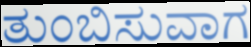
ತುಂಬಿಸುವಾಗ